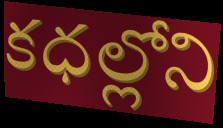
కధల్లోని